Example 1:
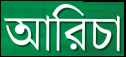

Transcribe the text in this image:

আরিচা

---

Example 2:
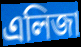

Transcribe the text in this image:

এলিজা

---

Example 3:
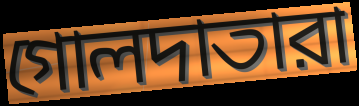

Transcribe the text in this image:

গোলদাতারা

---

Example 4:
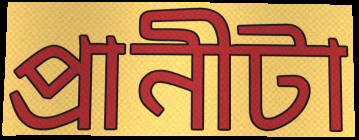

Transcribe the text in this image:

প্রানীটা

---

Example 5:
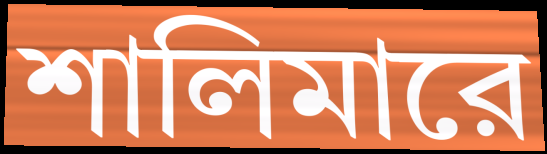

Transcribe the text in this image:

শালিমারে